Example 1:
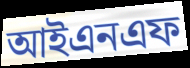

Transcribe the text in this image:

আইএনএফ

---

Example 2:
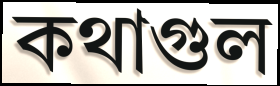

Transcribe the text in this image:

কথাগুল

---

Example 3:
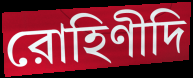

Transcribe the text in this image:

রোহিণীদি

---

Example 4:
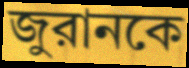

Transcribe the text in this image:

জুরানকে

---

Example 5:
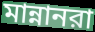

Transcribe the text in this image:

মান্নানরা